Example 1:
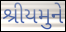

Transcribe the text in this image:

શ્રીયમુને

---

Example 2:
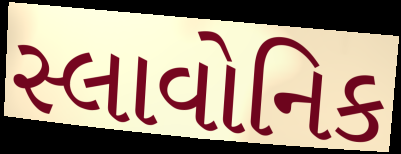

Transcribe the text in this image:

સ્લાવોનિક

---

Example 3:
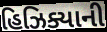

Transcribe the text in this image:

હિઝિક્યાની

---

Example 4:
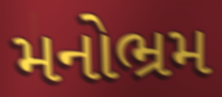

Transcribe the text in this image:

મનોભ્રમ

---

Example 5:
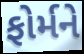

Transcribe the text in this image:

ફોર્મને